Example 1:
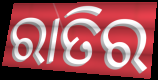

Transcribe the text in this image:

ରାତିର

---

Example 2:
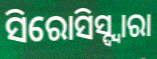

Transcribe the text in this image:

ସିରୋସିସ୍ଦ୍ୱାରା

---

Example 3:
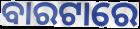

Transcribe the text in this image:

ବାରଟାରେ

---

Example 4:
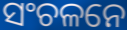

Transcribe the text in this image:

ସଂଚଳନେ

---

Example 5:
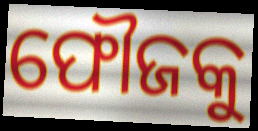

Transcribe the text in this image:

ଫୌଜକୁ